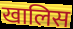
खालिस